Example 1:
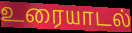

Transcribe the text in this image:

உரையாடல்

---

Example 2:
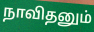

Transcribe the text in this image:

நாவிதனும்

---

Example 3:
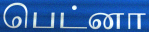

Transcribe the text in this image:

பெட்னா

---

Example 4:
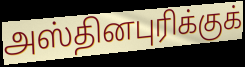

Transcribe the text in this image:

அஸ்தினபுரிக்குக்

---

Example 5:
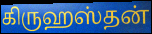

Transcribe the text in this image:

கிருஹஸ்தன்